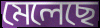
মেলেছে